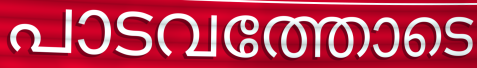
പാടവത്തോടെ